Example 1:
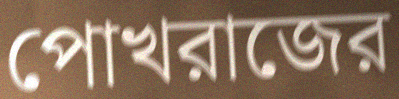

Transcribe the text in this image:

পোখরাজের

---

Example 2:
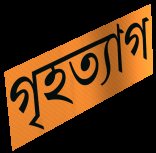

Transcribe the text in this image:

গৃহত্যাগ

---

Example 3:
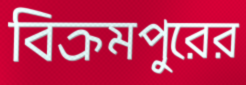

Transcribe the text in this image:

বিক্রমপুরের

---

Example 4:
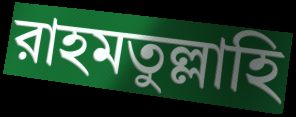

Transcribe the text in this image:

রাহমতুল্লাহি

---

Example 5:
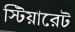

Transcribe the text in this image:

স্টিয়ারেট